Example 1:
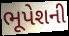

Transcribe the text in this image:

ભૂપેશની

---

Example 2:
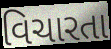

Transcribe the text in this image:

વિચારતા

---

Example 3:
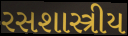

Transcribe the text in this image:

રસશાસ્ત્રીય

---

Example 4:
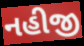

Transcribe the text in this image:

નહીજી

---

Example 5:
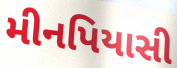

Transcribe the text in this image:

મીનપિયાસી